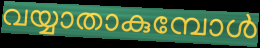
വയ്യാതാകുമ്പോൾ